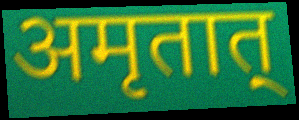
अमृतात्